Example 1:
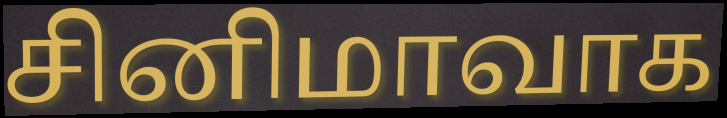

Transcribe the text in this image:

சினிமாவாக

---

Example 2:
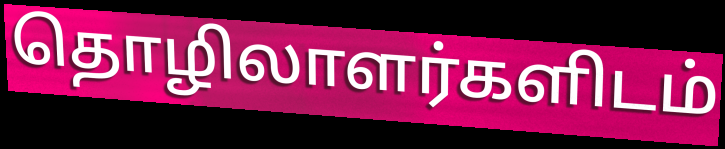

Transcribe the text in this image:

தொழிலாளர்களிடம்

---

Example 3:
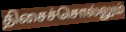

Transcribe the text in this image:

திசைச்சொல்லும்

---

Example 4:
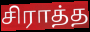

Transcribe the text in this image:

சிராத்த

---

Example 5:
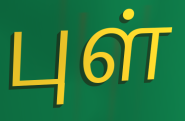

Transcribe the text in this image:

புள்